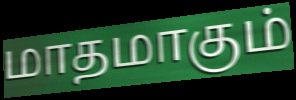
மாதமாகும்